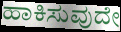
ಹಾಕಿಸುವುದೇ